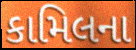
કામિલના